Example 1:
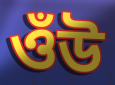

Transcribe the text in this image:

ওঁউ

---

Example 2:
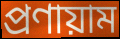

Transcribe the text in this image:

প্রণায়াম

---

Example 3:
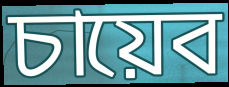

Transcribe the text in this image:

চায়েব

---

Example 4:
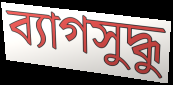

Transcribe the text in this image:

ব্যাগসুদ্ধু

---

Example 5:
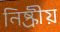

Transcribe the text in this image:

নিষ্ক্রীয়